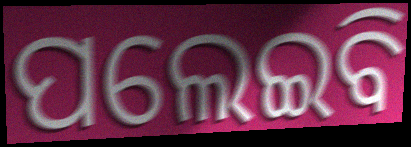
ପଲେଇବି